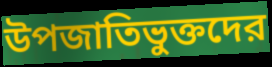
উপজাতিভুক্তদের